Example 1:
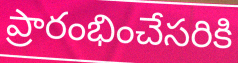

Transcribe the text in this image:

ప్రారంభించేసరికి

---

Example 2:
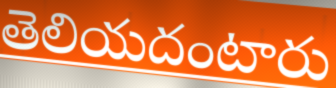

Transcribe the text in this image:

తెలియదంటారు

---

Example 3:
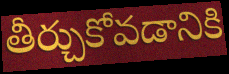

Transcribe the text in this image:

తీర్చుకోవడానికి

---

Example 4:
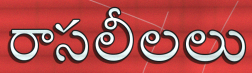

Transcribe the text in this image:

రాసలీలలు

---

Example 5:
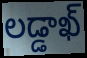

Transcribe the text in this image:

లడ్డాఖ్